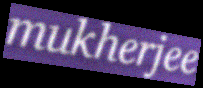
mukherjee